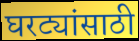
घरट्यांसाठी